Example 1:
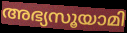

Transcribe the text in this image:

അഭ്യസൂയാമി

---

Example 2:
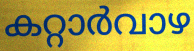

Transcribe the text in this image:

കറ്റാർവാഴ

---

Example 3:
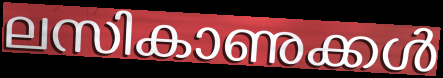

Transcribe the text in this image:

ലസികാണുക്കൾ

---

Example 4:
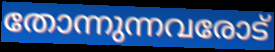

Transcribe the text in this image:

തോന്നുന്നവരോട്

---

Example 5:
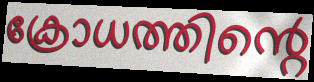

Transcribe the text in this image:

ക്രോധത്തിന്റെ